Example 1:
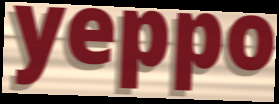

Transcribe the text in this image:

yeppo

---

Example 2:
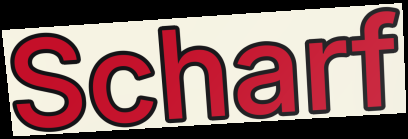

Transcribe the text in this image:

Scharf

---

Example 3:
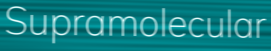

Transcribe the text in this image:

Supramolecular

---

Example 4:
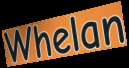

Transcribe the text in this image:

Whelan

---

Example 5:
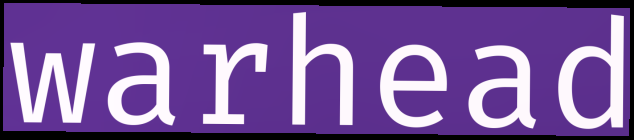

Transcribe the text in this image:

warhead